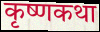
कृष्णकथा